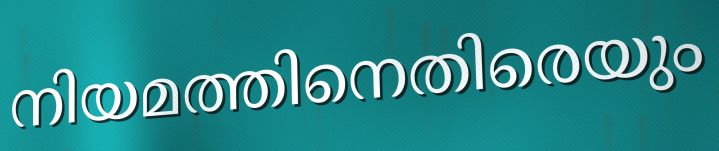
നിയമത്തിനെതിരെയും